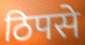
ठिपसे